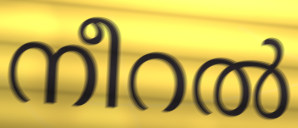
നീറൽ